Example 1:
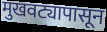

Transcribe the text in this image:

मुखवट्यापासून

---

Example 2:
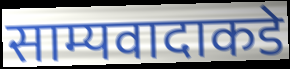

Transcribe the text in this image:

साम्यवादाकडे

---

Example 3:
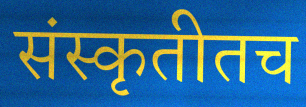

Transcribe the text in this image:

संस्कृतीतच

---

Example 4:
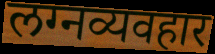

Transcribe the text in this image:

लग्नव्यवहार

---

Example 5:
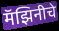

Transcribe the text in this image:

मॅझिनीचे